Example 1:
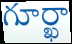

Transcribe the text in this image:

గూర్ఖా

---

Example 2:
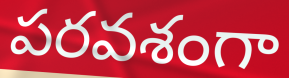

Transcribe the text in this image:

పరవశంగా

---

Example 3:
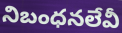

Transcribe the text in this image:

నిబంధనలేవీ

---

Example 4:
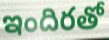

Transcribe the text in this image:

ఇందిరతో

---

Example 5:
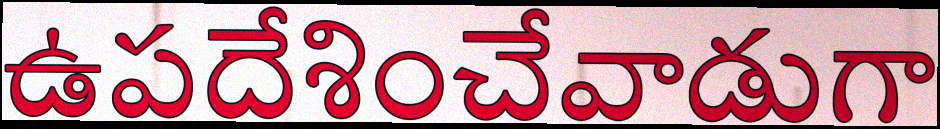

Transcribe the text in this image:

ఉపదేశించేవాడుగా